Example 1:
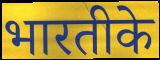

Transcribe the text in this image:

भारतीके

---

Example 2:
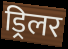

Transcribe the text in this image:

ड्रिलर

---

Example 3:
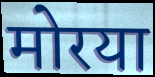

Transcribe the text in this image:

मोरया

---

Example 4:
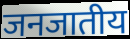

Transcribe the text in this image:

जनजातीय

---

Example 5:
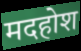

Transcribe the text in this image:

मदहोश